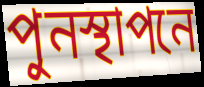
পুনস্থাপনে